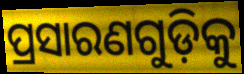
ପ୍ରସାରଣଗୁଡ଼ିକୁ